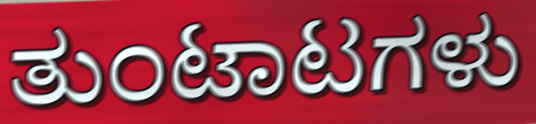
ತುಂಟಾಟಗಳು